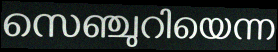
സെഞ്ചുറിയെന്ന